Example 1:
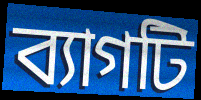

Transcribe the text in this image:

ব্যাগটি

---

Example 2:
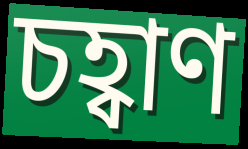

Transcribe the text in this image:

চহ্বাণ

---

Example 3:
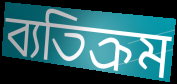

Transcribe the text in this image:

ব্যতিক্রম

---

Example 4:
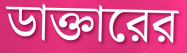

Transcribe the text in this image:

ডাক্তারের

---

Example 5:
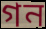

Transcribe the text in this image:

গন